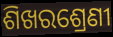
ଶିଖରଶ୍ରେଣୀ